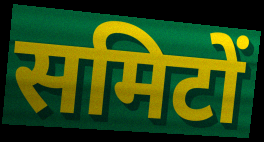
समिटों